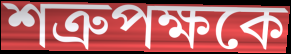
শত্রুপক্ষকে